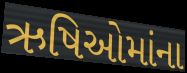
ઋષિઓમાંના